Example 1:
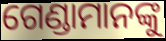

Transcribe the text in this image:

ଗେଣ୍ଡାମାନଙ୍କୁ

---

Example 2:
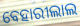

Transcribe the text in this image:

ବେହାରୀଲାଲ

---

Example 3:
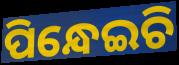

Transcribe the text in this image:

ପିନ୍ଧେଇଚି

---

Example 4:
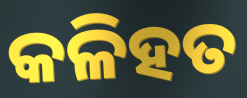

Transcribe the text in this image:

କଳିହତ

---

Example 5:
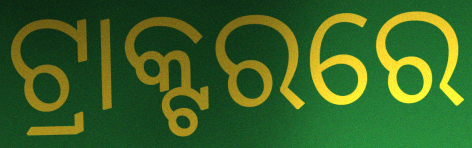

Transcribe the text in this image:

ଟ୍ରାକ୍ଟରରେ